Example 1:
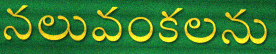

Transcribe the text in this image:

నలువంకలను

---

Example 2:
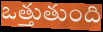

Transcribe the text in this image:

ఒత్తుతుంది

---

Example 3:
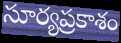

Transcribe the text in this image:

సూర్యప్రకాశం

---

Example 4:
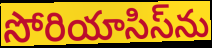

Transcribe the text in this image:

సోరియాసిస్‌ను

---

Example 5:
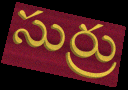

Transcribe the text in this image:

సుర్రు